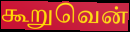
கூறுவென்